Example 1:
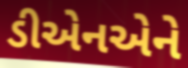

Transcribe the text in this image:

ડીએનએને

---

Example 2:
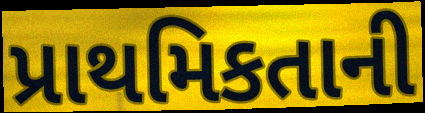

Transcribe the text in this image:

પ્રાથમિકતાની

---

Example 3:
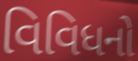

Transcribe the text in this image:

વિવિધનો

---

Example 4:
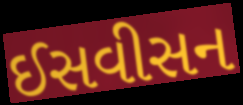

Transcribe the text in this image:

ઈસવીસન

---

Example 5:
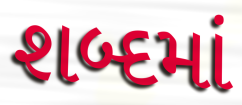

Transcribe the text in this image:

શબ્દમાં